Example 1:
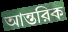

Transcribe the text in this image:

আন্তরিক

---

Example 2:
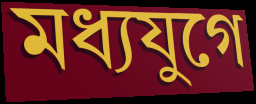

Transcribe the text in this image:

মধ্যযুগে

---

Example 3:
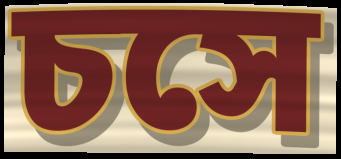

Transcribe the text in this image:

চসে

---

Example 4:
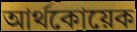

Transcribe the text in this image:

আর্থকোয়েক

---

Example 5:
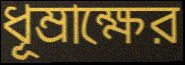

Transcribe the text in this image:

ধূম্রাক্ষের